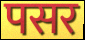
पसर